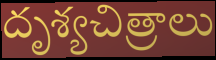
దృశ్యచిత్రాలు